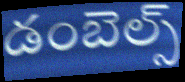
డంబెల్స్